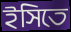
ইসিতে